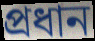
প্ৰধান